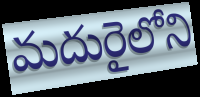
మదురైలోని